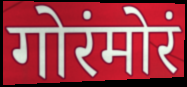
गोरंमोरं